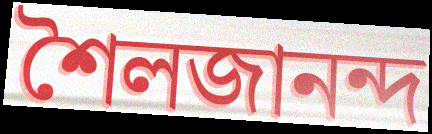
শৈলজানন্দ